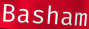
Basham